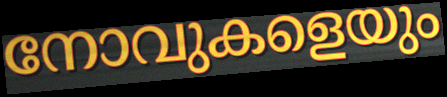
നോവുകളെയും